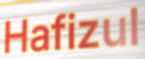
Hafizul